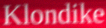
Klondike